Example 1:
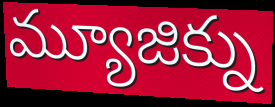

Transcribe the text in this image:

మ్యూజిక్ను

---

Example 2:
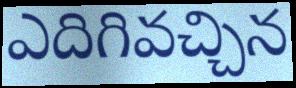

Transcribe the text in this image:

ఎదిగివచ్చిన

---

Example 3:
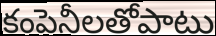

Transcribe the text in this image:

కంపెనీలతోపాటు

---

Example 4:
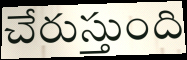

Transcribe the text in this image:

చేరుస్తుంది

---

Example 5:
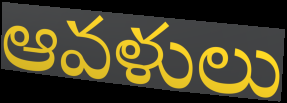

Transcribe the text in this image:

ఆవళులు